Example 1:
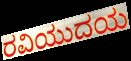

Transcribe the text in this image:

ರವಿಯುದಯ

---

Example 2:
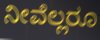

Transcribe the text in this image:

ನೀವೆಲ್ಲರೂ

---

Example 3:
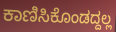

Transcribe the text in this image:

ಕಾಣಿಸಿಕೊಂಡದ್ದಲ್ಲ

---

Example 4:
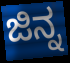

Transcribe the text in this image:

ಜಿನ್ನ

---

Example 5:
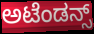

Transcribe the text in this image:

ಅಟೆಂಡನ್ಸ್